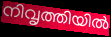
നിവൃത്തിയിൽ